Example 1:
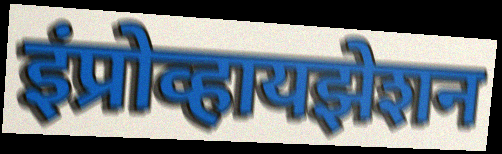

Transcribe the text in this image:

इंप्रोव्हायझेशन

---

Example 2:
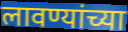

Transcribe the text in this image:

लावण्यांच्या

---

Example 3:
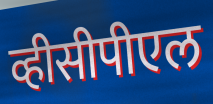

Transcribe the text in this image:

व्हीसीपीएल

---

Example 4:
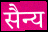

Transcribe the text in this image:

सैन्‍य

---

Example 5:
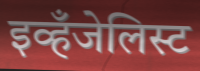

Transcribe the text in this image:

इव्हँजेलिस्ट